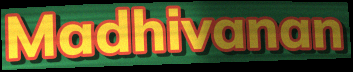
Madhivanan